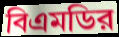
বিএমডির